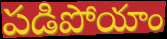
పడిపోయాం